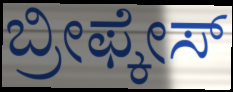
ಬ್ರೀಫ್ಕೇಸ್